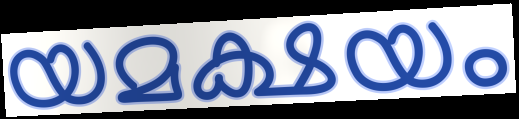
യമക്ഷയം